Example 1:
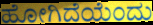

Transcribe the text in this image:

ಹೋಗಿದೆಯೆಂದು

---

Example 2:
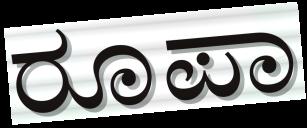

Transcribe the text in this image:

ರೂಪಾ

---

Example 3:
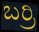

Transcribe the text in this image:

ಬರ್ರಿ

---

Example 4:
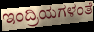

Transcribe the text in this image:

ಇಂದ್ರಿಯಗಳಂತೆ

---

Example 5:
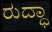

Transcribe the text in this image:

ರುದ್ಧಾ